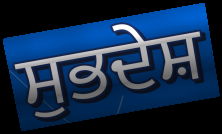
ਸੁਭਦੇਸ਼